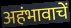
अहंभावाचें